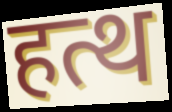
हत्थ